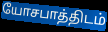
யோசபாத்திடம்